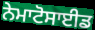
ਨੇਮਾਟੋਸਾਈਡ